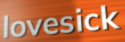
lovesick